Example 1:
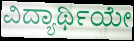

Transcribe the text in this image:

ವಿದ್ಯಾರ್ಥಿಯೇ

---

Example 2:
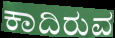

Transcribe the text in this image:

ಕಾದಿರುವ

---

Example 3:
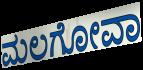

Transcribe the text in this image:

ಮಲಗೋವಾ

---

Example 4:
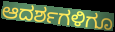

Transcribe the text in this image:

ಆದರ್ಶಗಳಿಗೂ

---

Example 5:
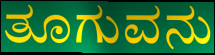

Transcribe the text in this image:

ತೂಗುವನು